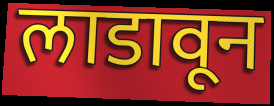
लाडावून